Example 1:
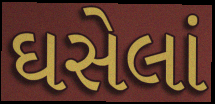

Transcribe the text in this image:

ઘસેલાં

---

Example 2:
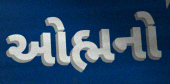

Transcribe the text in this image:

ઓહ્મનો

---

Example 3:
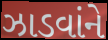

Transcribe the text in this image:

ઝાડવાંને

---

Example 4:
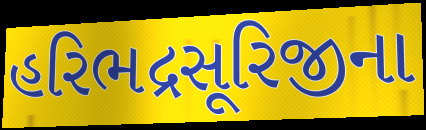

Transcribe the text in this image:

હરિભદ્રસૂરિજીના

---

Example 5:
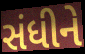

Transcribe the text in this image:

સંધીને